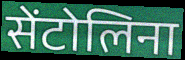
सेंटोलिना